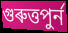
গুৰুত্তপুৰ্ন